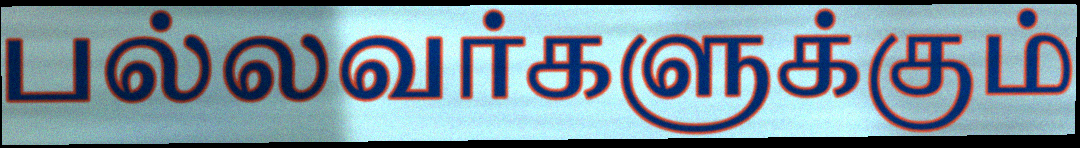
பல்லவர்களுக்கும்